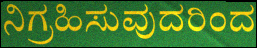
ನಿಗ್ರಹಿಸುವುದರಿಂದ